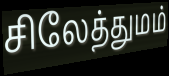
சிலேத்துமம்